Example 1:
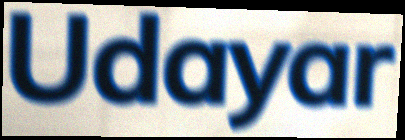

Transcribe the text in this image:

Udayar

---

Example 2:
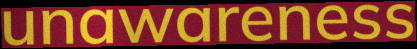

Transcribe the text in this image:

unawareness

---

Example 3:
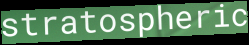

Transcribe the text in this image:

stratospheric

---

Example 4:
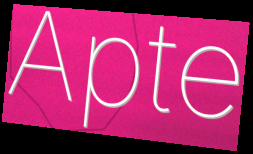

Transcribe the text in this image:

Apte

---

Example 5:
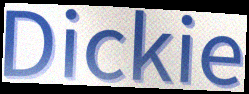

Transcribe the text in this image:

Dickie